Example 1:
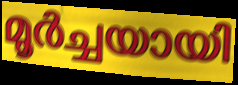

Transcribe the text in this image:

മൂർച്ചയായി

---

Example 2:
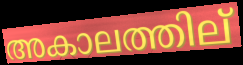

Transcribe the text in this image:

അകാലത്തില്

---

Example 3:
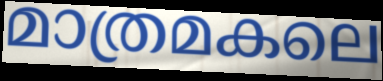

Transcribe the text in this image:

മാത്രമകലെ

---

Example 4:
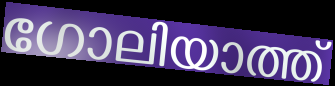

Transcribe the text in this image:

ഗോലിയാത്ത്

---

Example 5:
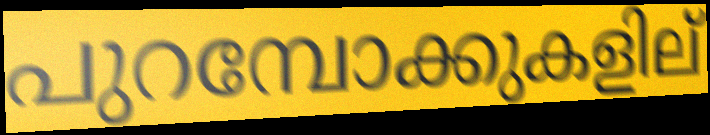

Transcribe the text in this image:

പുറമ്പോക്കുകളില്